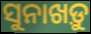
ସୁନାଖଡ଼ୁ